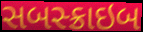
સબસ્ક્રાઇબ